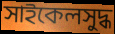
সাইকেলসুদ্ধ